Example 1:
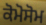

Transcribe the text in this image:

ਕੋਮੋਸੋਮ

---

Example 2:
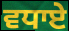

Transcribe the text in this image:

ਵਧਾਏ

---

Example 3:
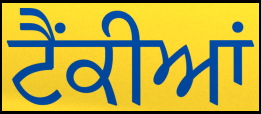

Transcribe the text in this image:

ਟੈਂਕੀਆਂ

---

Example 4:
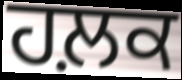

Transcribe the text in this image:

ਹਲ਼ਕ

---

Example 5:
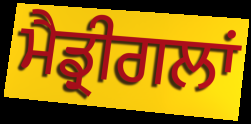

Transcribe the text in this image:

ਮੈਡ੍ਰੀਗਲਾਂ